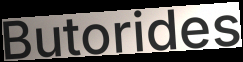
Butorides